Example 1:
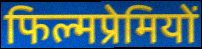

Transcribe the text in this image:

फिल्मप्रेमियों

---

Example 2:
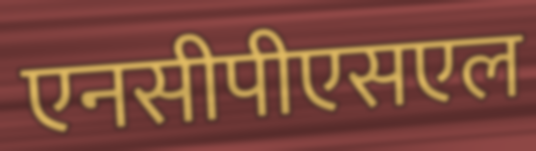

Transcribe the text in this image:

एनसीपीएसएल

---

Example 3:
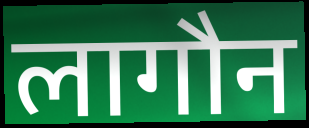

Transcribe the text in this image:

लागौन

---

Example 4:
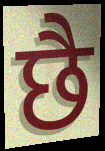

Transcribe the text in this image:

छै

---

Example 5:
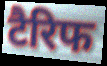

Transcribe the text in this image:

टैरिफ